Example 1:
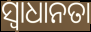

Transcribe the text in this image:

ସ୍ୱାଧାନତା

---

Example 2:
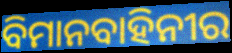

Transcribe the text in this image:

ବିମାନବାହିନୀର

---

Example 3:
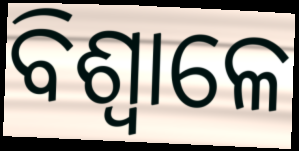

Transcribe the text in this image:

ବିଶ୍ଵାଳେ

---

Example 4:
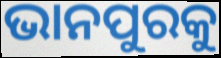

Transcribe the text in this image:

ଭାନପୁରକୁ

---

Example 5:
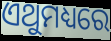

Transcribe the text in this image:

ଏଥୁମଧ୍ୟରେ